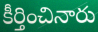
కీర్తించినారు